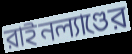
রাইনল্যাণ্ডের